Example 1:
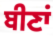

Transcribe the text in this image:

ਬੀਣਾਂ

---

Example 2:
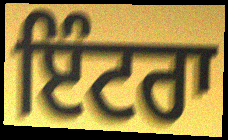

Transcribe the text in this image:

ਇੰਟਰਾ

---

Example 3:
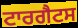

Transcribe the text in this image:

ਟਾਰਗੈਟਸ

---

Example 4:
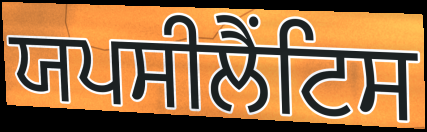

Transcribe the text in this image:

ਯਪਸੀਲੈਂਟਿਸ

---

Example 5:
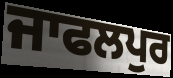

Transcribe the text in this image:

ਜਾਫਲਪੁਰ